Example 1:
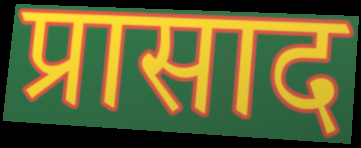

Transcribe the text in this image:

प्रासाद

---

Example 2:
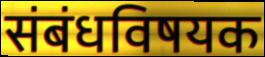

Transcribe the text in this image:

संबंधविषयक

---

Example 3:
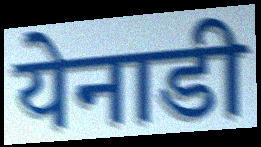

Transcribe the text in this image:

येनाडी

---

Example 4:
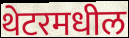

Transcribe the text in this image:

थेटरमधील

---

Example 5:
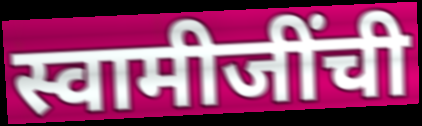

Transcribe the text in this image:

स्वामीजींची